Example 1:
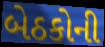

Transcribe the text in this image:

બેઠકોની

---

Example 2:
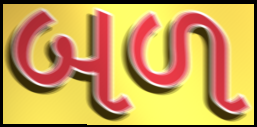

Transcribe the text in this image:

બળ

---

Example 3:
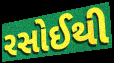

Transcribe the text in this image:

રસોઈથી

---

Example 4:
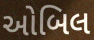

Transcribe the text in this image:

ઓબિલ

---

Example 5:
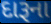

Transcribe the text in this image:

દારૂના